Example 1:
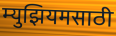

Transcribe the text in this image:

म्युझियमसाठी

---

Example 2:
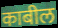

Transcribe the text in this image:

काबील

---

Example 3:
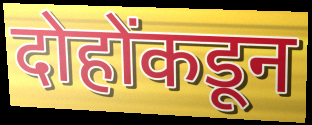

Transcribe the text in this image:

दोहोंकडून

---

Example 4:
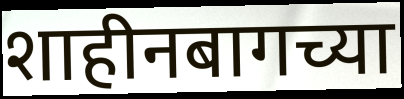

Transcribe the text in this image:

शाहीनबागच्या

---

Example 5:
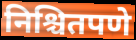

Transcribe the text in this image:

निश्चितपणे